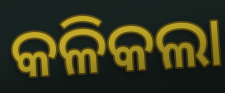
କଳିକଲା